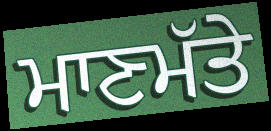
ਮਾਣਮੱਤੇ